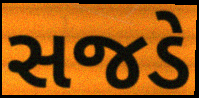
સજડે